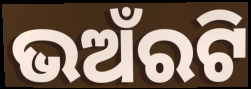
ଭଅଁରଟି